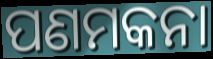
ପଣମକନା